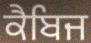
ਕੈਬਿਜ